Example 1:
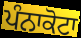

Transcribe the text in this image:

ਪੰਨਾਕੋਟਾ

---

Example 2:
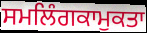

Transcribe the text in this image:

ਸਮਲਿੰਗਕਾਮੁਕਤਾ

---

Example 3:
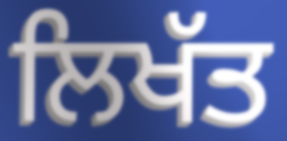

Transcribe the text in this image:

ਲਿਖੱਤ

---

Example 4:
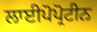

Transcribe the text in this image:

ਲਾਈਪੋਪ੍ਰੋਟੀਨ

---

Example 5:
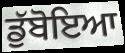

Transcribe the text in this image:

ਡੁੱਬੋਇਆ